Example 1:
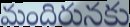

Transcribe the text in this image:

మందిరునకు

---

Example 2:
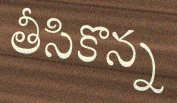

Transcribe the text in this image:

తీసికొన్న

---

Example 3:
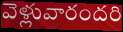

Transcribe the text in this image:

వెళ్లువారందరి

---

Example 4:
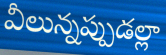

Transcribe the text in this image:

వీలున్నప్పుడల్లా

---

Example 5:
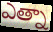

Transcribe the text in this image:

ఎత్నా